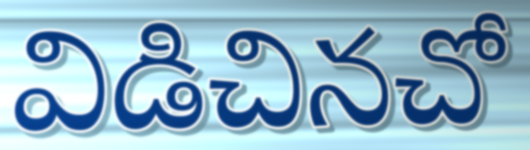
విడిచినచో